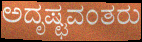
ಅದೃಷ್ಟವಂತರು